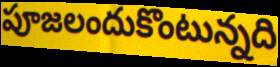
పూజలందుకొంటున్నది